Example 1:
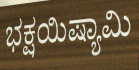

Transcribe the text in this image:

ಭಕ್ಷಯಿಷ್ಯಾಮಿ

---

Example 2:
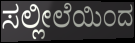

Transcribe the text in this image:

ಸಲ್ಲೀಲೆಯಿಂದ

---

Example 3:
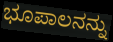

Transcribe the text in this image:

ಭೂಪಾಲನನ್ನು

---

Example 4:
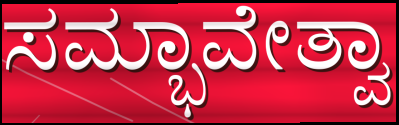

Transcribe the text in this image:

ಸಮ್ಭಾವೇತ್ವಾ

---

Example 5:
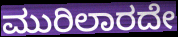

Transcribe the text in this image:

ಮುರಿಲಾರದೇ